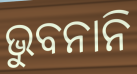
ଭୁବନାନି